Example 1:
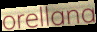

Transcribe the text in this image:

orellana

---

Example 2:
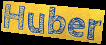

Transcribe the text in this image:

Huber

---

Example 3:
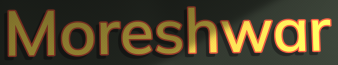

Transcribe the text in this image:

Moreshwar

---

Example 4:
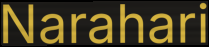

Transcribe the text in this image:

Narahari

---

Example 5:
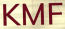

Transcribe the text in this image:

KMF